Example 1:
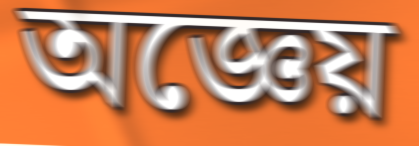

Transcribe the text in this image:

অজ্ঞেয়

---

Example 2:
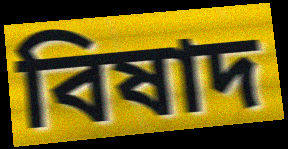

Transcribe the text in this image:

বিষাদ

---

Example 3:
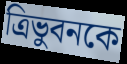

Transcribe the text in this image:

ত্রিভুবনকে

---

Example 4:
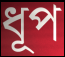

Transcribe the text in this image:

ধূপ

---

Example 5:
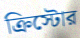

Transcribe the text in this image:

ক্রিস্টোর